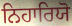
ਨਿਹਾਰਿਯੋ